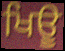
ਖਿਊ